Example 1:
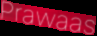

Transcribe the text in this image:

Prawaas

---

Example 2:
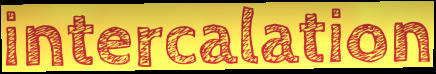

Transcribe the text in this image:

intercalation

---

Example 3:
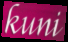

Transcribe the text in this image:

kuni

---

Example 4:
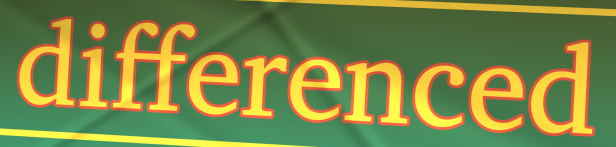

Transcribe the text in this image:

differenced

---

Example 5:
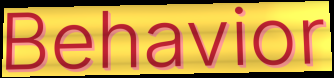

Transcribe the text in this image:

Behavior